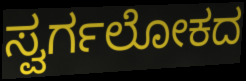
ಸ್ವರ್ಗಲೋಕದ